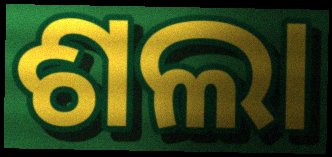
ଶଲା